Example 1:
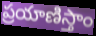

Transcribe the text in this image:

ప్రయాణిస్తాం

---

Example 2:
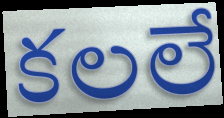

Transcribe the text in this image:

కలలే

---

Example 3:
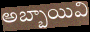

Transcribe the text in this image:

అబ్బాయివి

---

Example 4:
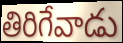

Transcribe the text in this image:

తిరిగేవాడు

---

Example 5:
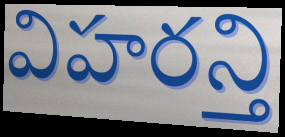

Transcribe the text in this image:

విహరన్తి